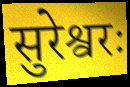
सुरेश्वरः